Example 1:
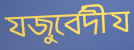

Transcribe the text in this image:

যজুর্বেদীয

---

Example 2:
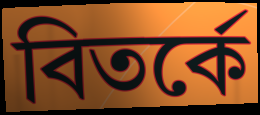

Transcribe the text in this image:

বিতর্কে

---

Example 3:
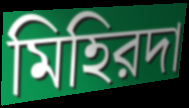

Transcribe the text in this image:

মিহিরদা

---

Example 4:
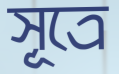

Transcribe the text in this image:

সূত্রে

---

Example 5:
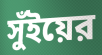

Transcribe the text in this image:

সুঁইয়ের